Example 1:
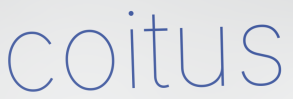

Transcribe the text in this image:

coitus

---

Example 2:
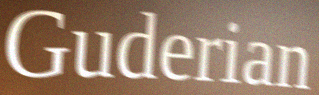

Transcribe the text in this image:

Guderian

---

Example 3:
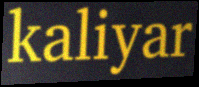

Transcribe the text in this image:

kaliyar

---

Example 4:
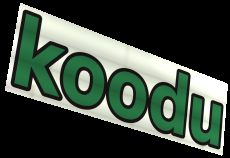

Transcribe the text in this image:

koodu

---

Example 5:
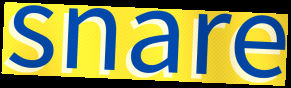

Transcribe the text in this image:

snare